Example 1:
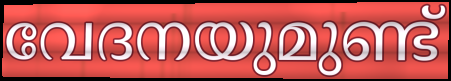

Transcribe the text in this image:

വേദനയുമുണ്ട്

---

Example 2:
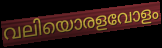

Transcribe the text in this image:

വലിയൊരളവോളം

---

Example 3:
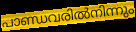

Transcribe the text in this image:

പാണ്ഡവരിൽനിന്നും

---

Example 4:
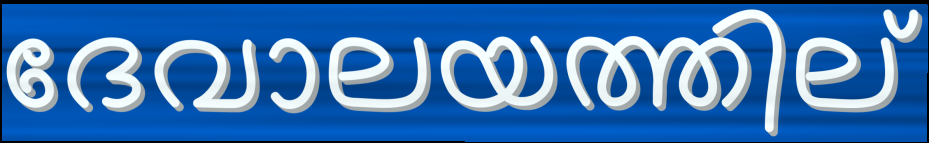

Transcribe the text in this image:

ദേവാലയത്തില്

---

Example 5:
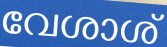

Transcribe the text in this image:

വേശാശ്